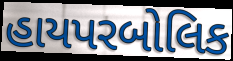
હાયપરબોલિક